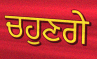
ਚਹੁਣਗੇ